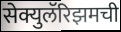
सेक्युलॅरिझमची